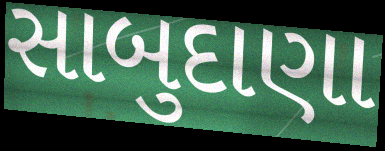
સાબુદાણા